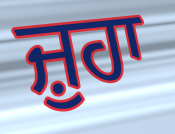
ਜ਼ੁਹਾ